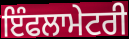
ਇੰਫਲਾਮੇਟਰੀ